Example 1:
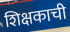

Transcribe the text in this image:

शिक्षकाची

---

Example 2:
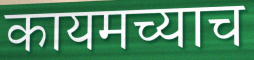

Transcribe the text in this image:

कायमच्याच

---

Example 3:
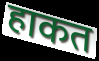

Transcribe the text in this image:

हाकत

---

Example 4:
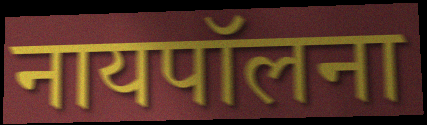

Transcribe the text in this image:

नायपॉलना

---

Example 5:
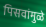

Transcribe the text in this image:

पिसवांमुळे